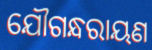
ଯୌଗନ୍ଧରାୟଣ